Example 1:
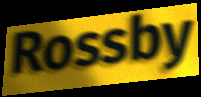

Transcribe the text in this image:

Rossby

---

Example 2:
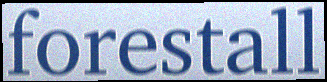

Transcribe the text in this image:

forestall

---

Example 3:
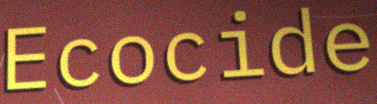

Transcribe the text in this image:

Ecocide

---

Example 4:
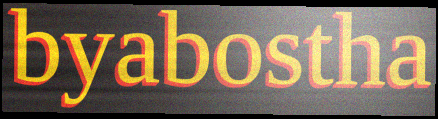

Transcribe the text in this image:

byabostha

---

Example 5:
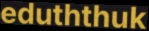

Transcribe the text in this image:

eduththuk